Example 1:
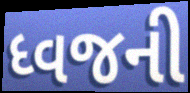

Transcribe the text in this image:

ધ્વજની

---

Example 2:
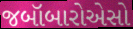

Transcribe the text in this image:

જબૉબારોએસો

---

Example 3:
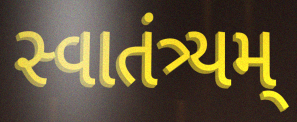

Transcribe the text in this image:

સ્વાતંત્ર્યમ્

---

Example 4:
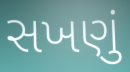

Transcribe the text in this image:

સખણું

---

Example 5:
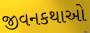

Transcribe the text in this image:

જીવનકથાઓ